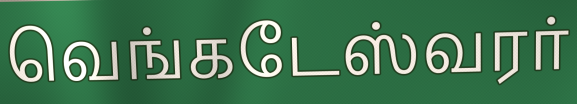
வெங்கடேஸ்வரர்